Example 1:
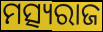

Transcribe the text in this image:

ମତ୍ସ୍ୟରାଜ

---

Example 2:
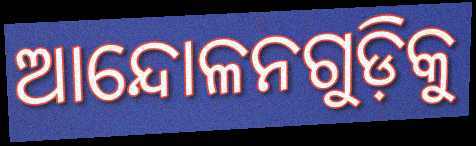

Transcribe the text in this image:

ଆନ୍ଦୋଳନଗୁଡ଼ିକୁ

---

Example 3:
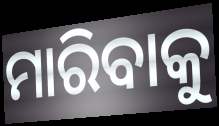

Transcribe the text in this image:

ମାରିବାକୁ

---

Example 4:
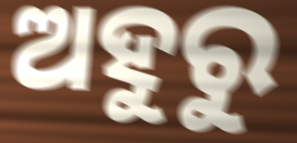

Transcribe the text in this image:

ଅହୁରୁ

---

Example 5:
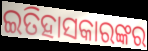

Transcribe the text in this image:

ଇତିହାସକାରଙ୍କର